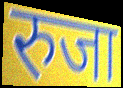
रुजा